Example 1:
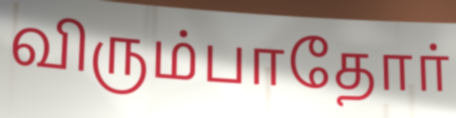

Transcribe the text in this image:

விரும்பாதோர்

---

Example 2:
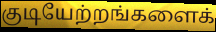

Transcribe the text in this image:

குடியேற்றங்களைக்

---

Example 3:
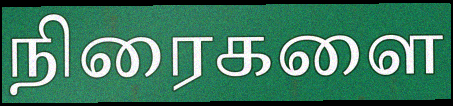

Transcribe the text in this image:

நிரைகளை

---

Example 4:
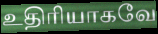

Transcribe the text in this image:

உதிரியாகவே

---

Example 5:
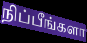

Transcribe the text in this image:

நிப்பீங்களா